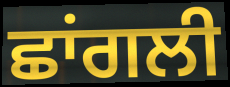
ਛਾਂਗਲੀ